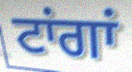
ਟਾਂਗਾਂ